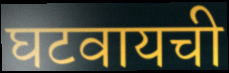
घटवायची